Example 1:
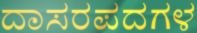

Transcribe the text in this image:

ದಾಸರಪದಗಳ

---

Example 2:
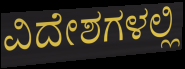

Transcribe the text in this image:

ವಿದೇಶಗಳಲ್ಲಿ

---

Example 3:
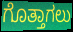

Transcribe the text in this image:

ಗೊತ್ತಾಗಲು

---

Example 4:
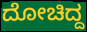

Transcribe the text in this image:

ದೋಚಿದ್ದ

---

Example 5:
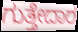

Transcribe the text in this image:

ಗುತ್ತೇದಾರ